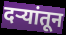
दऱ्यांतून